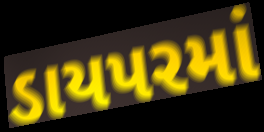
ડાયપરમાં